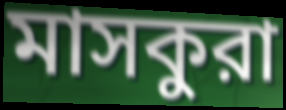
মাসকুরা